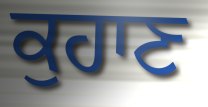
ਕੁਹਾਣ